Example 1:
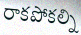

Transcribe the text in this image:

రాకపోకల్ని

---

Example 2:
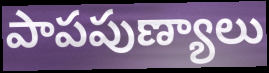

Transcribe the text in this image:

పాపపుణ్యాలు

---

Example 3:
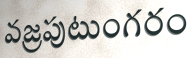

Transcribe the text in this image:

వజ్రపుటుంగరం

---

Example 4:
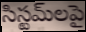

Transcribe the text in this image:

సిస్టమ్‌లపై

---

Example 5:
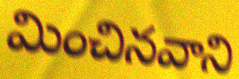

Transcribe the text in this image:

మించినవాని